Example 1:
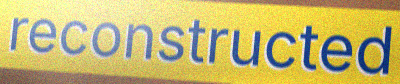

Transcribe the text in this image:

reconstructed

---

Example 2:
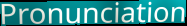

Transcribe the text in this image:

Pronunciation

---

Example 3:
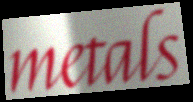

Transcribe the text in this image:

metals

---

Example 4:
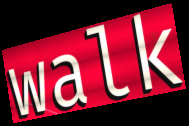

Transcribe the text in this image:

walk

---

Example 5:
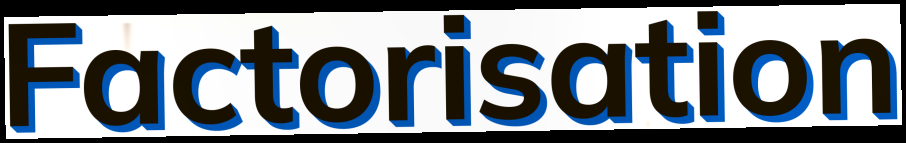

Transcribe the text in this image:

Factorisation